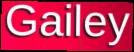
Gailey